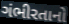
ગંભીરતાનો